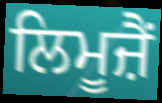
ਲਿਮੂਜ਼ੈਂ